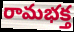
రామభక్త